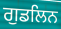
ਗੁਡਲਿਨ